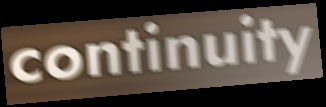
continuity